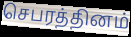
செபரத்தினம்